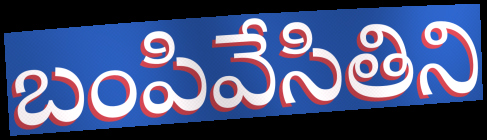
బంపివేసితిని